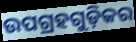
ଉପଗ୍ରହଗୁଡ଼ିକର